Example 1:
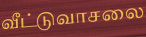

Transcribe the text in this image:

வீட்டுவாசலை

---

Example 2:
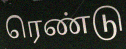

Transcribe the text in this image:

ரெண்டு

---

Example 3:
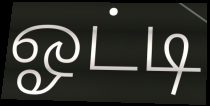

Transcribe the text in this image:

ஓட்டி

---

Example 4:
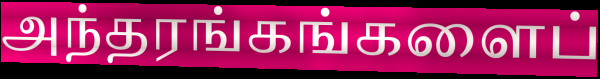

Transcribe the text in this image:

அந்தரங்கங்களைப்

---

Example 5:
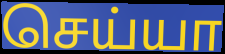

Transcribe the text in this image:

செய்யா